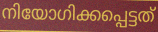
നിയോഗിക്കപ്പെട്ടത്